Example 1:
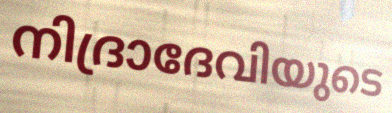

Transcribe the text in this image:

നിദ്രാദേവിയുടെ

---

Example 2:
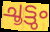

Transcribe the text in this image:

ചൂട്ടും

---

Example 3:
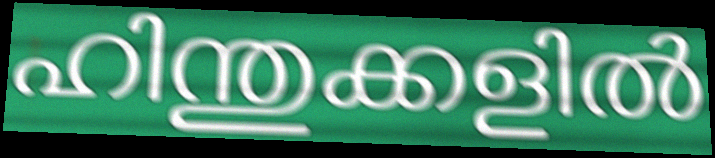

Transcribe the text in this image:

ഹിന്തുക്കളിൽ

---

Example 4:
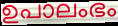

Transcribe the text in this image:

ഉപാലംഭം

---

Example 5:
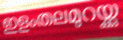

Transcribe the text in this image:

ഇളംതലമുറയ്ക്കു